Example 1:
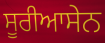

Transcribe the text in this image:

ਸੂਰੀਆਸੇਨ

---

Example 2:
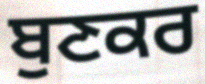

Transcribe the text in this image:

ਬੁਣਕਰ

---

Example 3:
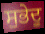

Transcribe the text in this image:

ਸੁਭੇਦੂ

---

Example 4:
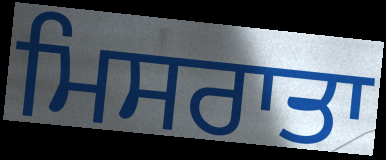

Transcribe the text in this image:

ਮਿਸਰਾਤਾ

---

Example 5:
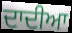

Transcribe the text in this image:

ਦਾਦੀਆ